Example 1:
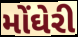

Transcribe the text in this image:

મોંઘેરી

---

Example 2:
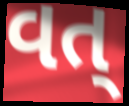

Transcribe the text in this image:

વત્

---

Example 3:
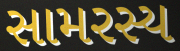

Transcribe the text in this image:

સામરસ્ય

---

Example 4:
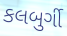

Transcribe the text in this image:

કલબુર્ગી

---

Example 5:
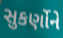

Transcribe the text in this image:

સુકર્ણોને